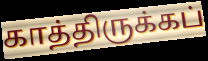
காத்திருக்கப்